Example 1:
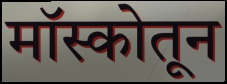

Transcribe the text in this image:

मॉस्कोतून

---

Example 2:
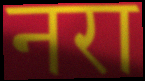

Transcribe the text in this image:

नरा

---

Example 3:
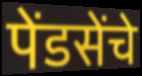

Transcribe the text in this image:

पेंडसेंचे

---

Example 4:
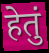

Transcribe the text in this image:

हेतुं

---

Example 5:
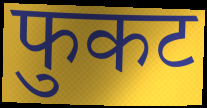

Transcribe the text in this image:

फुकट